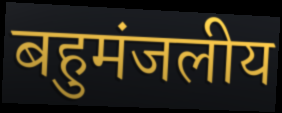
बहुमंजलीय